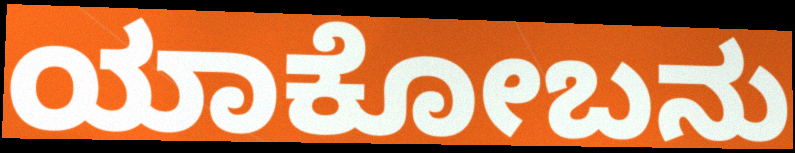
ಯಾಕೋಬನು